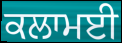
ਕਲਾਮਈ